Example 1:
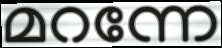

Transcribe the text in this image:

മറന്നേ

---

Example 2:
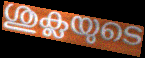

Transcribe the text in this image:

ശുക്ലയുടെ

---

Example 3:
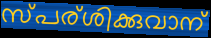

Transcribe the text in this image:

സ്പര്ശിക്കുവാന്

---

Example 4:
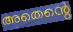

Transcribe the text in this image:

അതെന്റെ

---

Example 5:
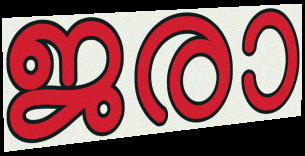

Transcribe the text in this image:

ജരാ